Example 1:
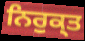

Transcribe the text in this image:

ਨਿਰੁਕ੍ਤ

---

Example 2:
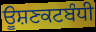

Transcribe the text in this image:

ਊਸ਼ਣਕਟਬੰਧੀ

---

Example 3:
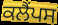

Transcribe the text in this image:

ਕਲੈਂਪਸ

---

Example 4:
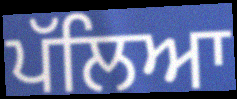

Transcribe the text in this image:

ਪੱਲਿਆ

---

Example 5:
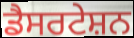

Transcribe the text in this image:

ਡੈਸਰਟੇਸ਼ਨ